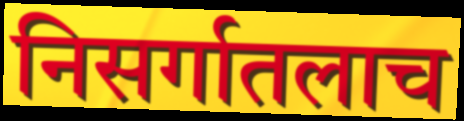
निसर्गातलाच